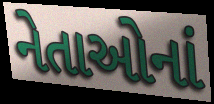
નેતાઓનાં